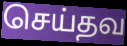
செய்தவ